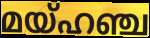
മയ്ഹഞ്ച